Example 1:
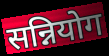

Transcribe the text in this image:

सन्नियोग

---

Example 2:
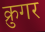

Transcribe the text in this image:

क्रुगर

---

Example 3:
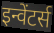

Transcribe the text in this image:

इन्वेंटर्स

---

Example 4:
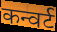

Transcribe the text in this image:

कन्वर्ट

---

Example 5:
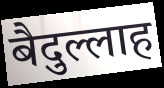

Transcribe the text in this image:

बैदुल्लाह